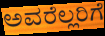
ಅವರೆಲ್ಲರಿಗೆ